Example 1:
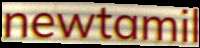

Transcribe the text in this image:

newtamil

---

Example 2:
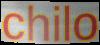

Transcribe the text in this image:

chilo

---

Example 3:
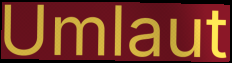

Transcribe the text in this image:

Umlaut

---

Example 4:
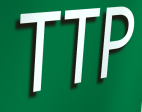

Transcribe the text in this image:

TTP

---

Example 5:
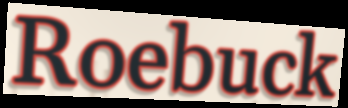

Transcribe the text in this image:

Roebuck